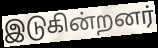
இடுகின்றனர்